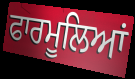
ਫਾਰਮੂਲਿਆਂ